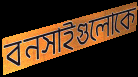
বনসাইগুলোকে